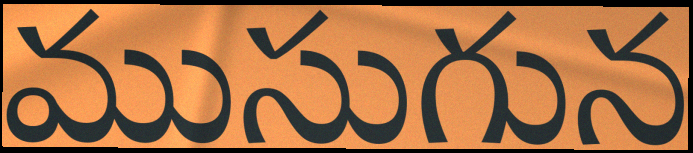
ముసుగున